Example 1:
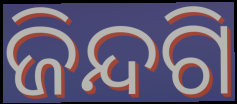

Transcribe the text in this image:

ଜିନ୍ଦଗି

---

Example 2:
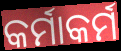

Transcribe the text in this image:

କର୍ମାକର୍ମ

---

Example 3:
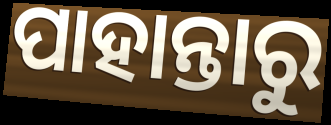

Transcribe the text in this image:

ପାହାନ୍ତାରୁ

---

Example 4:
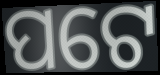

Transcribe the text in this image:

ପଟେ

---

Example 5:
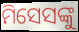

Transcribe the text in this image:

ମିସେସଙ୍କୁ